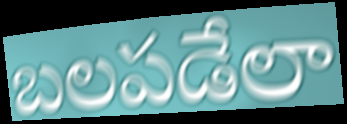
బలపడేలా